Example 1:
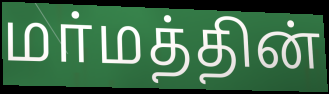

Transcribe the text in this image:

மர்மத்தின்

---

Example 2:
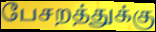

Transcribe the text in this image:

பேசறத்துக்கு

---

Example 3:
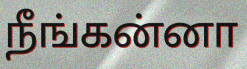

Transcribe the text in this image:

நீங்கன்னா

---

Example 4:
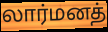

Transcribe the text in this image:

லார்மனத்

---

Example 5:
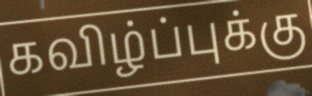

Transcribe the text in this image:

கவிழ்ப்புக்கு